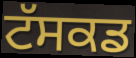
ਟੱਸਕਡ